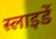
स्लाइडें